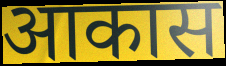
आकास